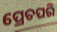
ପ୍ରେତପରି